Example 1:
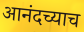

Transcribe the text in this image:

आनंदच्याच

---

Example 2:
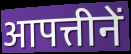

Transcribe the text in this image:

आपत्तीनें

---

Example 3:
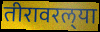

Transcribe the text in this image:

तीरावरल्या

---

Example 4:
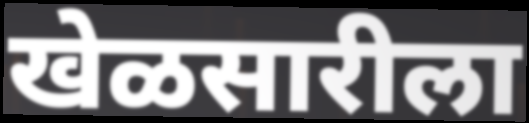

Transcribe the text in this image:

खेळसारीला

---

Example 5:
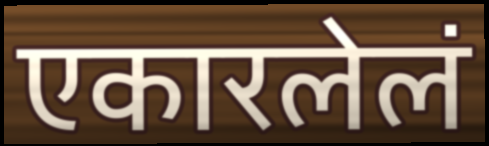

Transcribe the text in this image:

एकारलेलं